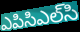
ఎపిసిఎల్‌సి